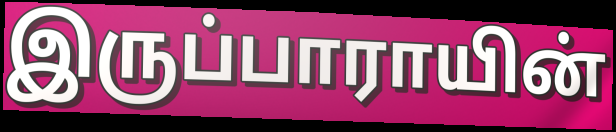
இருப்பாராயின்